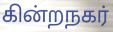
கின்றநகர்